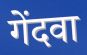
गेंदवा